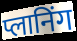
प्लानिंग